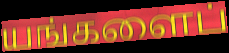
யங்களைப்